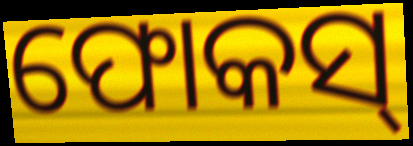
ଫୋକସ୍